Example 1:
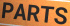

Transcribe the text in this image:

PARTS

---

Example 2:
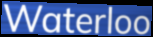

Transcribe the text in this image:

Waterloo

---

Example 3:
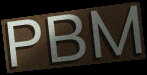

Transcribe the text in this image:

PBM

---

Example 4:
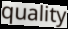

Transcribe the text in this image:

quality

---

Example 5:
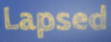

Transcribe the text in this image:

Lapsed